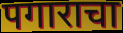
पगाराचा